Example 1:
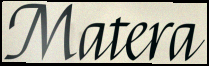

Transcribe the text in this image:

Matera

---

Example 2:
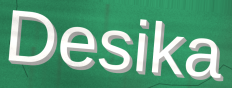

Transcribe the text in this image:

Desika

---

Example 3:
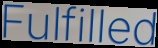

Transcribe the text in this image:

Fulfilled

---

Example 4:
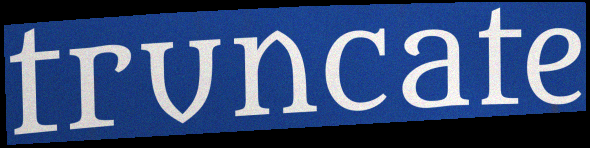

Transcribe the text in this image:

truncate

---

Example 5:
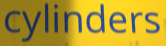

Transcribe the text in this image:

cylinders